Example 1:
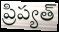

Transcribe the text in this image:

ప్రిప్యత్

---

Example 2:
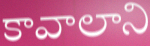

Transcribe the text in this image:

కావాలాని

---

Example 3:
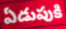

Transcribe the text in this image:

ఏడుపుకి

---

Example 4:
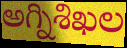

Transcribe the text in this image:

అగ్నిశిఖల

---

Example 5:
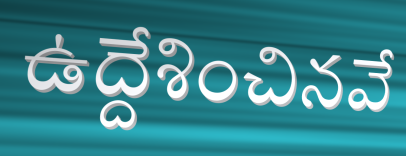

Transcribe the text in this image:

ఉద్దేశించినవే